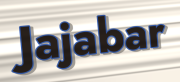
Jajabar